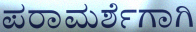
ಪರಾಮರ್ಶೆಗಾಗಿ